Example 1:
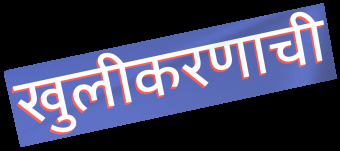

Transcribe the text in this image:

खुलीकरणाची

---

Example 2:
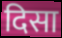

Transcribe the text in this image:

दिसा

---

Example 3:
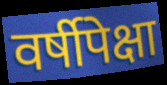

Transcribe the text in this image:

वर्षीपेक्षा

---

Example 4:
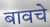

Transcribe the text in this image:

बावचे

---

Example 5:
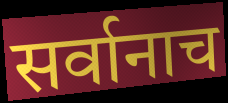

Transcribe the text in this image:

सर्वानाच